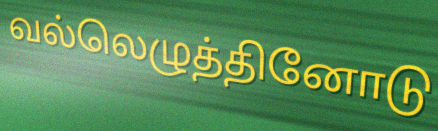
வல்லெழுத்தினோடு